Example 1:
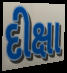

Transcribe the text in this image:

દીક્ષા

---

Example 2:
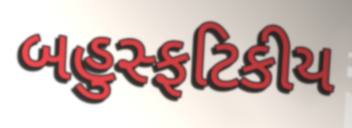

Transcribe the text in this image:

બહુસ્ફટિકીય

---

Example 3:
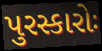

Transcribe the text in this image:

પુરસ્કારોઃ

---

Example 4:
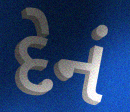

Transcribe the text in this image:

દેનં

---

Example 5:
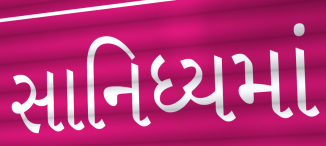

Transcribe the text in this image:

સાનિધ્યમાં